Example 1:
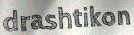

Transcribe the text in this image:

drashtikon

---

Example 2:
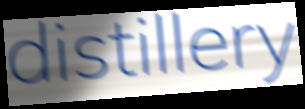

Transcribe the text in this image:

distillery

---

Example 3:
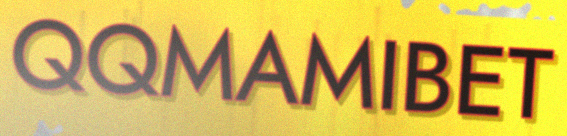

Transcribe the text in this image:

QQMAMIBET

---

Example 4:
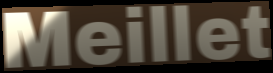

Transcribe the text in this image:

Meillet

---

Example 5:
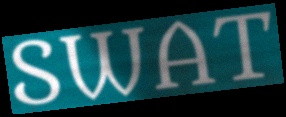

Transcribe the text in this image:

SWAT